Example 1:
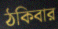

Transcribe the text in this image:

ঠকিবার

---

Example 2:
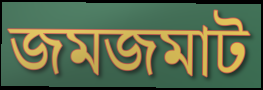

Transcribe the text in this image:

জমজমাট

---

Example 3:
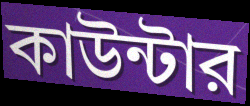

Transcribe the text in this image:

কাউন্টার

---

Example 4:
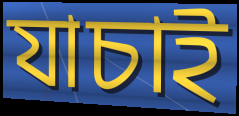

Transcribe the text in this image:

যাচাই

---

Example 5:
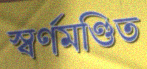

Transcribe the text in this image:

স্বর্ণমণ্ডিত